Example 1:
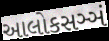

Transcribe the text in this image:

આલોકસઞ્ઞં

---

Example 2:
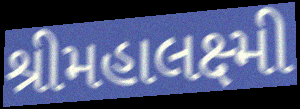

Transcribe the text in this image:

શ્રીમહાલક્ષ્મી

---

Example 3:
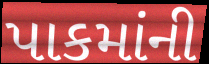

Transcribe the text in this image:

પાકમાંની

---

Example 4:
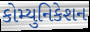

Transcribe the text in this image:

કોમ્યુનિકેશન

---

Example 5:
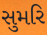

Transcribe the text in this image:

સુમરિ